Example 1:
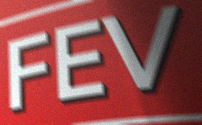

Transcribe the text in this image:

FEV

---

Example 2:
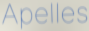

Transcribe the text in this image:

Apelles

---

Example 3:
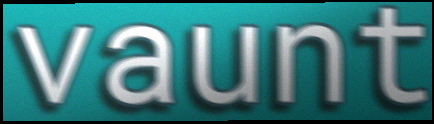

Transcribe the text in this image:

vaunt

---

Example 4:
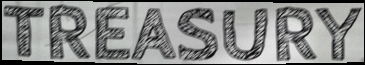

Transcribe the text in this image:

TREASURY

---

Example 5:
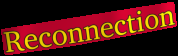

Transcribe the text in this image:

Reconnection